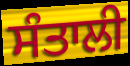
ਸੰਤਾਲੀ